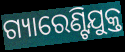
ଗ୍ୟାରେଣ୍ଟିଯୁକ୍ତ